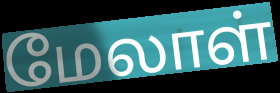
மேலாள்